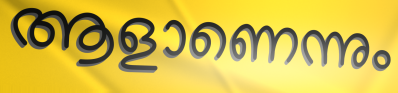
ആളാണെന്നും